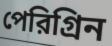
পেরিগ্রিন